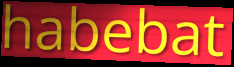
habebat